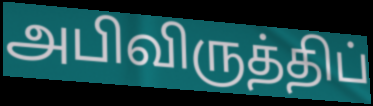
அபிவிருத்திப்